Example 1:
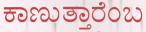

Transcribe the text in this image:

ಕಾಣುತ್ತಾರೆಂಬ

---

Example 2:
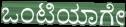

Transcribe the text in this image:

ಒಂಟಿಯಾಗೇ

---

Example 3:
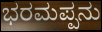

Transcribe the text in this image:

ಭರಮಪ್ಪನು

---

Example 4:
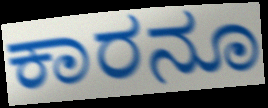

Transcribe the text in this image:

ಕಾರನೂ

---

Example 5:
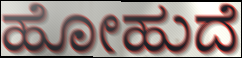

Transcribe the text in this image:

ಹೋಹುದೆ